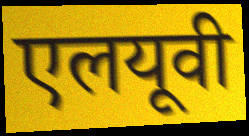
एलयूवी